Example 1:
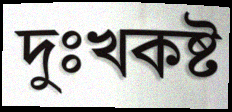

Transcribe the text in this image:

দুঃখকষ্ট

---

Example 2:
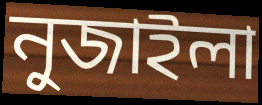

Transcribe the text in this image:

নুজাইলা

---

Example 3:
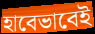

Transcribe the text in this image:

হাবেভাবেই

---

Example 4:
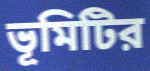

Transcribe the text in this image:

ভূমিটির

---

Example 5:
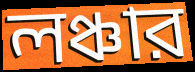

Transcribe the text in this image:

লঞ্চার